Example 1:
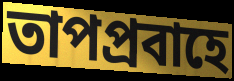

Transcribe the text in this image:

তাপপ্রবাহে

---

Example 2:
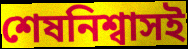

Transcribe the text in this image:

শেষনিশ্বাসই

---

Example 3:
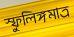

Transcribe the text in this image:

স্ফুলিঙ্গমাত্র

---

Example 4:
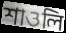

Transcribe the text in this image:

শাওলি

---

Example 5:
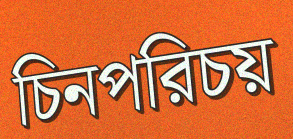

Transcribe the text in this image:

চিনপরিচয়